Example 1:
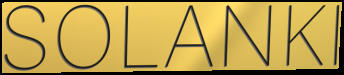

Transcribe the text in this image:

SOLANKI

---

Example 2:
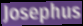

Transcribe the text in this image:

Josephus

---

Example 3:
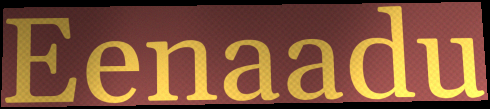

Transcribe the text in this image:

Eenaadu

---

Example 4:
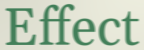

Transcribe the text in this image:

Effect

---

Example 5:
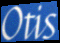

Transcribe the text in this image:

Otis